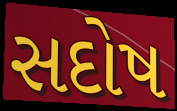
સદોષ